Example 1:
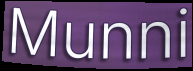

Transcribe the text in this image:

Munni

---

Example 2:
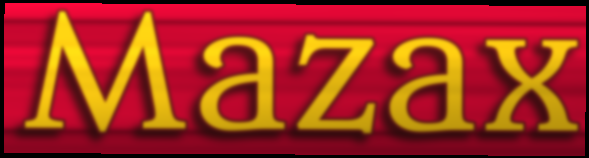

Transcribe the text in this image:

Mazax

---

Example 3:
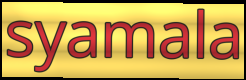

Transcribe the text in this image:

syamala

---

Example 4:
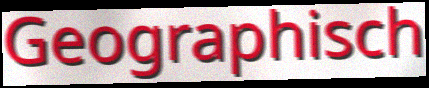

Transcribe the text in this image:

Geographisch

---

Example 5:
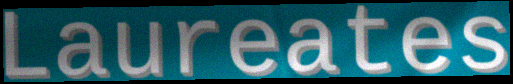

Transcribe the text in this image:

Laureates